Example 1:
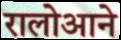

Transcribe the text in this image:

रालोआने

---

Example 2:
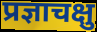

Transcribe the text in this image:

प्रज्ञाचक्षु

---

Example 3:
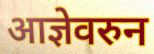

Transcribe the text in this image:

आज्ञेवरुन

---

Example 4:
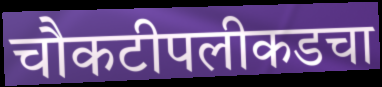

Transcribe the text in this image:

चौकटीपलीकडचा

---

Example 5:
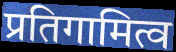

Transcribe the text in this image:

प्रतिगामित्व